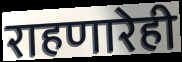
राहणारेही